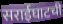
सराईघाटची